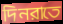
দিনরাতে